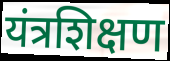
यंत्रशिक्षण